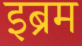
इब्रम